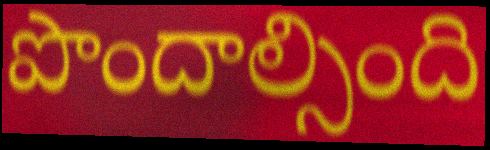
పొందాల్సింది